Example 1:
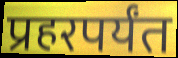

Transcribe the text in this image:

प्रहरपर्यंत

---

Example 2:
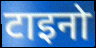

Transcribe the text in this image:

टाइनो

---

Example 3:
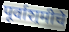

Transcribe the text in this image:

पूर्वाश्रमीचे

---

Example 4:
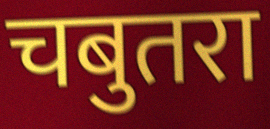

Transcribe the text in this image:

चबुतरा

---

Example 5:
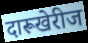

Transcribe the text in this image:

दारूखेरीज